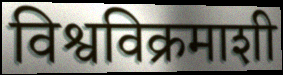
विश्वविक्रमाशी